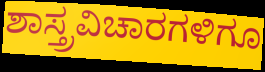
ಶಾಸ್ತ್ರವಿಚಾರಗಳಿಗೂ